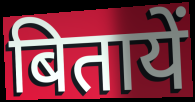
बितायें